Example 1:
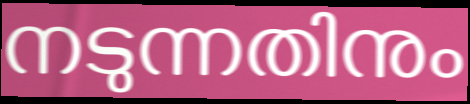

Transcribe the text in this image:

നടുന്നതിനും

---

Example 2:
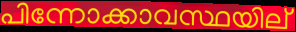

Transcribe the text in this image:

പിന്നോക്കാവസ്ഥയില്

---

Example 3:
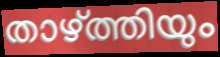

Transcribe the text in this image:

താഴ്ത്തിയും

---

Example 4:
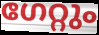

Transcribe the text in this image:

ഗേറ്റും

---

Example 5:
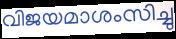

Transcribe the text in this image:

വിജയമാശംസിച്ചു